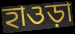
হাওড়া